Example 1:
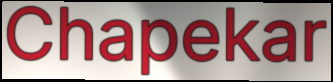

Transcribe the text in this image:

Chapekar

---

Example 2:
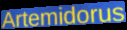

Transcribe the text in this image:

Artemidorus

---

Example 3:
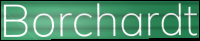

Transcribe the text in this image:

Borchardt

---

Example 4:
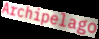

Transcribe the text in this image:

Archipelago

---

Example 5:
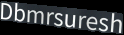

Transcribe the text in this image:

Dbmrsuresh